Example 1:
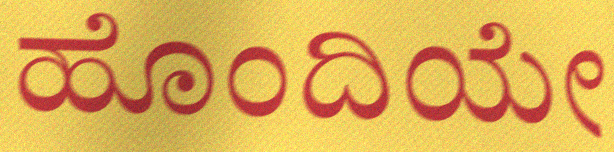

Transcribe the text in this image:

ಹೊಂದಿಯೇ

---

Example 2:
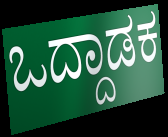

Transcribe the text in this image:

ಒದ್ದಾಡಕ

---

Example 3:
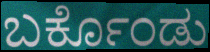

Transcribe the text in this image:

ಬರ್ಕೊಂಡು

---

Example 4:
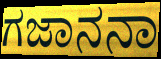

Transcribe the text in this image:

ಗಜಾನನಾ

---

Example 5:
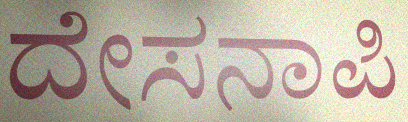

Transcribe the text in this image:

ದೇಸನಾಪಿ